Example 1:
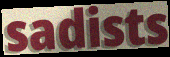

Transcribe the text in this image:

sadists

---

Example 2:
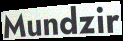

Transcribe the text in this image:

Mundzir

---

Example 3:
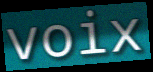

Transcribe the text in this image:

voix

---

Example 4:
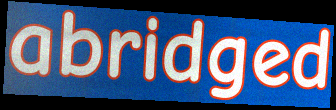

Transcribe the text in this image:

abridged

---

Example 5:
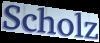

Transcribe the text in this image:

Scholz